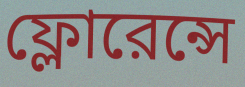
ফ্লোরেন্সে